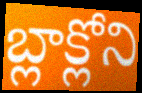
బ్లాక్లోని